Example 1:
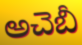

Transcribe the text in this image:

అచెబీ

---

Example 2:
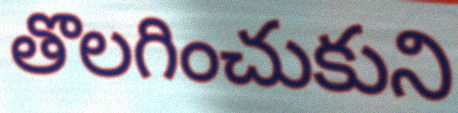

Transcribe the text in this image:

తొలగించుకుని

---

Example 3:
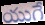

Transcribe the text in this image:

యుగే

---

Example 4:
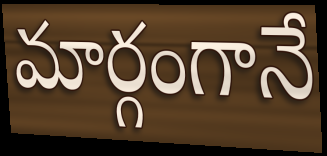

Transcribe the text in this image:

మార్గంగానే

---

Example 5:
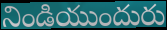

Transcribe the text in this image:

నిండియుందురు